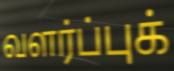
வளர்ப்புக்